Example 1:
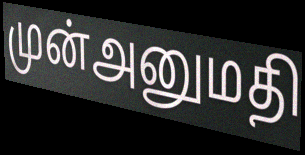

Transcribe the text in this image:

முன்அனுமதி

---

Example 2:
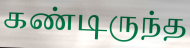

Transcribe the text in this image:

கண்டிருந்த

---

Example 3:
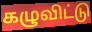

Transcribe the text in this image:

கழுவிட்டு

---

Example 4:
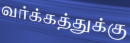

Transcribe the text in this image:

வர்க்கத்துக்கு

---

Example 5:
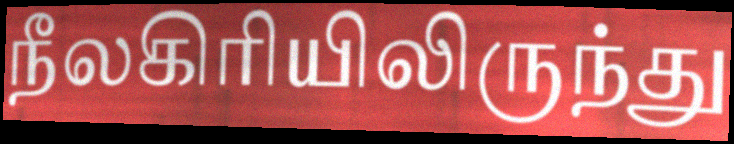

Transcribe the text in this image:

நீலகிரியிலிருந்து